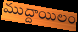
ముద్దాయిలం